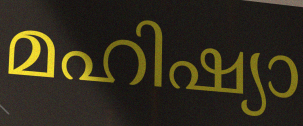
മഹിഷ്യാ